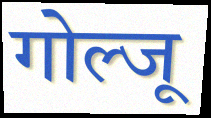
गोल्जू